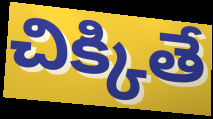
చిక్కితే